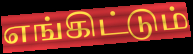
எங்கிட்டும்